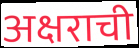
अक्षराची